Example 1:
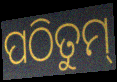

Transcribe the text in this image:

ପଠିତୁମ୍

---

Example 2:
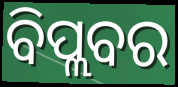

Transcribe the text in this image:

ବିପ୍ଲବର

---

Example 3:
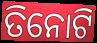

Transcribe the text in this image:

ତିନୋଟି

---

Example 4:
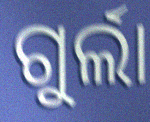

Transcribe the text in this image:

ଗୁର୍ଲା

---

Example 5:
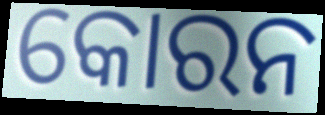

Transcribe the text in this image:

କୋରନ